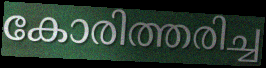
കോരിത്തരിച്ച